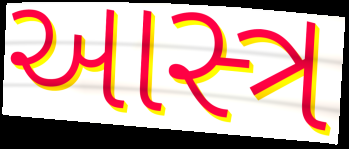
આસ્ત્ર